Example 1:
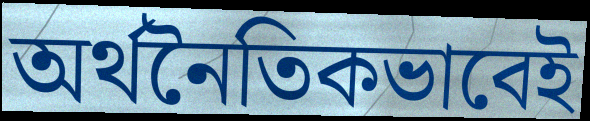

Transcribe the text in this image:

অর্থনৈতিকভাবেই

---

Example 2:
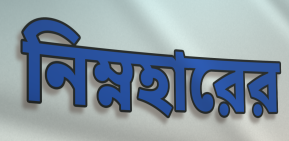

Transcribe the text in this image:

নিম্নহারের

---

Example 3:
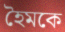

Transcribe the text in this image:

হৈমকে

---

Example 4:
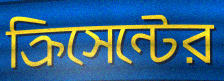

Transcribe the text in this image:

ক্রিসেন্টের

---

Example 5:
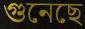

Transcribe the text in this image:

গুনেছে